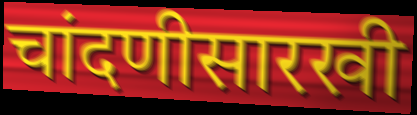
चांदणीसारखी